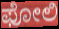
ಫೋಲಿ